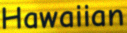
Hawaiian